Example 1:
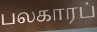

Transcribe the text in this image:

பலகாரப்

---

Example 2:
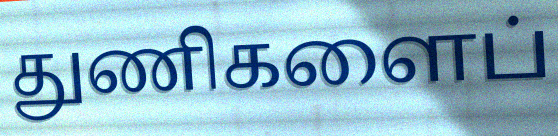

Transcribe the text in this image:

துணிகளைப்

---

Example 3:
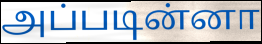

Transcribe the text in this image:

அப்படின்னா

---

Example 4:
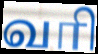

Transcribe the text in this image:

வரி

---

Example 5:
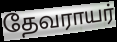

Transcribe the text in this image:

தேவராயர்